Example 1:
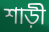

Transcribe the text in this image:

শাড়ী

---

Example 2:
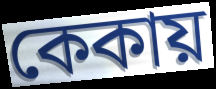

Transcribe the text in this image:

কেকায়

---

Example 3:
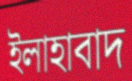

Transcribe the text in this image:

ইলাহাবাদ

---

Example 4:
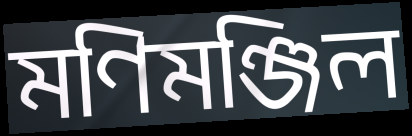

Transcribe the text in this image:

মণিমঞ্জিল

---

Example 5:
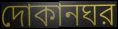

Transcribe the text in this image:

দোকানঘর